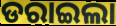
ଡରାଇଲା